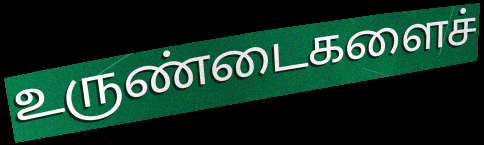
உருண்டைகளைச்